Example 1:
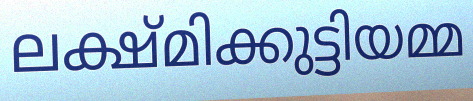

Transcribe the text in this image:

ലക്ഷ്മിക്കുട്ടിയമ്മ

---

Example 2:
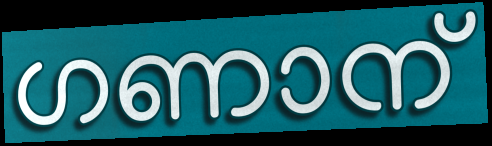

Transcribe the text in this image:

ഗണാന്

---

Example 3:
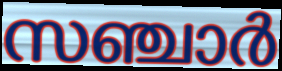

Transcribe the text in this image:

സഞ്ചാർ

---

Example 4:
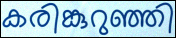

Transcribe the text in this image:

കരിങ്കുറുഞ്ഞി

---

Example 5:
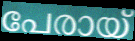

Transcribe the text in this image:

പേരായ്